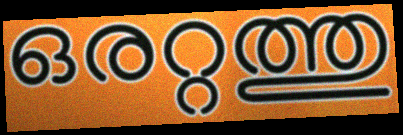
ഒരറ്റത്തു